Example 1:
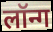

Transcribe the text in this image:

लॉन्ग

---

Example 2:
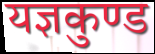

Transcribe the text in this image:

यज्ञकुण्ड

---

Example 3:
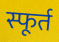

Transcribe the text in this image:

स्फूर्त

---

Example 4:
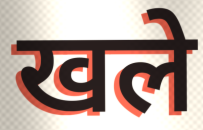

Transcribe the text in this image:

खले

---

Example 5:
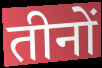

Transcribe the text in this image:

तीनों